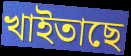
খাইতাছে